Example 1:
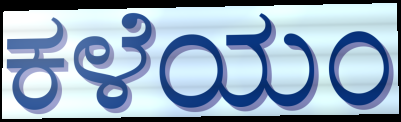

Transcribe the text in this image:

ಕಳೆಯಂ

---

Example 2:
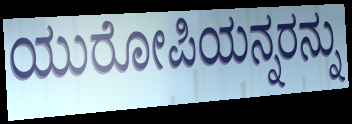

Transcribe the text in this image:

ಯುರೋಪಿಯನ್ನರನ್ನು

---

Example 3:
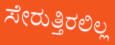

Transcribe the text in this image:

ಸೇರುತ್ತಿರಲಿಲ್ಲ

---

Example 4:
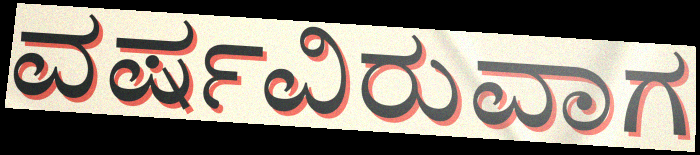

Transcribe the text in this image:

ವರ್ಷವಿರುವಾಗ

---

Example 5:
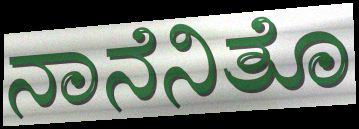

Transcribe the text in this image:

ನಾನೆನಿತೊ